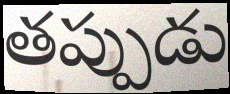
తప్పుడు